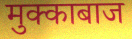
मुक्काबाज